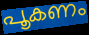
പൂകണം